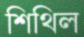
শিথিল